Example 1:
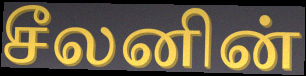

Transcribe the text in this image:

சீலனின்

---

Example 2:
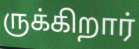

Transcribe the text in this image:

ருக்கிறார்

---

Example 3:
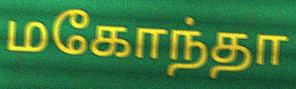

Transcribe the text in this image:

மகோந்தா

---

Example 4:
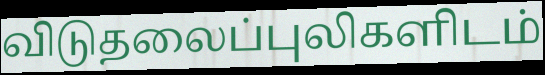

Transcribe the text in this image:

விடுதலைப்புலிகளிடம்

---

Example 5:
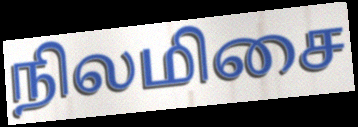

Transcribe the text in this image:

நிலமிசை